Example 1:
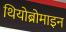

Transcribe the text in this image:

थियोब्रोमाइन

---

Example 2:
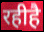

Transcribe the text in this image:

रहीहै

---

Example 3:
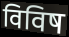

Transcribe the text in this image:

विविष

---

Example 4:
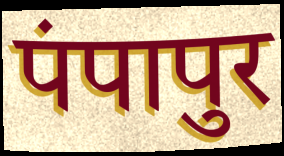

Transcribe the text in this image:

पंपापुर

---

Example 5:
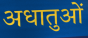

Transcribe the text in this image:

अधातुओं